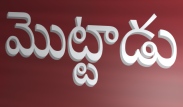
మొట్టాడు